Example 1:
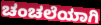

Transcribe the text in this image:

ಚಂಚಲೆಯಾಗಿ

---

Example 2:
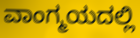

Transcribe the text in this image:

ವಾಂಗ್ಮಯದಲ್ಲಿ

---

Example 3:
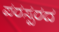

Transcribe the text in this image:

ಪರಸ್ಪರದ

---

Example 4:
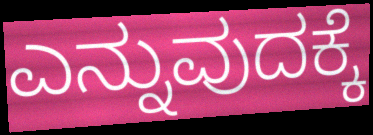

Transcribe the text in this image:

ಎನ್ನುವುದಕ್ಕೆ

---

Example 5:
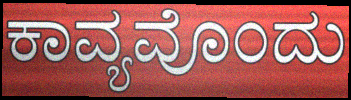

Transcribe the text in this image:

ಕಾವ್ಯವೊಂದು